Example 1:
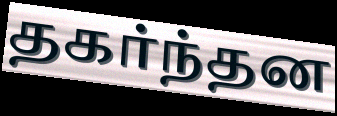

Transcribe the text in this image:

தகர்ந்தன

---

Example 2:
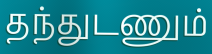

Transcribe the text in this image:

தந்துடணும்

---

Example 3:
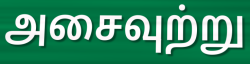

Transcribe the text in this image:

அசைவுற்று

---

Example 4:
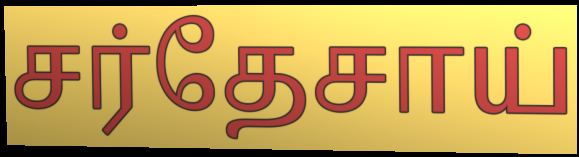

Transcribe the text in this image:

சர்தேசாய்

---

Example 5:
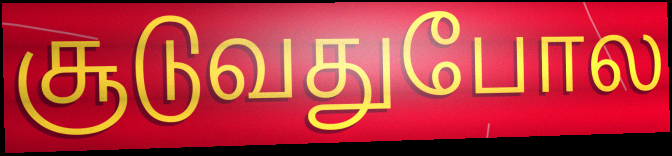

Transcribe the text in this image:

சூடுவதுபோல